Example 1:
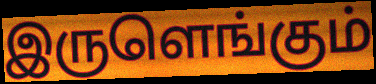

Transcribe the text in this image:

இருளெங்கும்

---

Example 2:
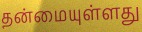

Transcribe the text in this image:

தன்மையுள்ளது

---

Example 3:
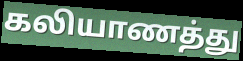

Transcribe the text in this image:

கலியாணத்து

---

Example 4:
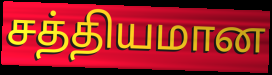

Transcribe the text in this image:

சத்தியமான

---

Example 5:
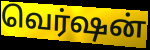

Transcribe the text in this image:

வெர்ஷன்